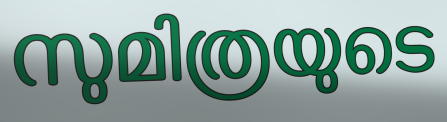
സുമിത്രയുടെ